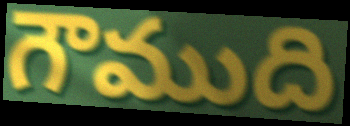
గౌముది